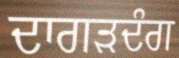
ਦਾਗੜਦੰਗ